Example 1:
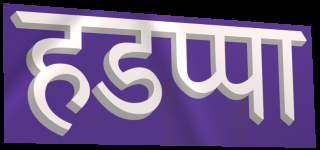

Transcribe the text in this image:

हडप्पा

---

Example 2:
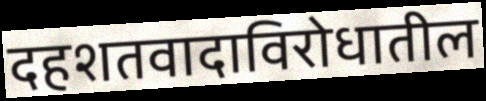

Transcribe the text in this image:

दहशतवादाविरोधातील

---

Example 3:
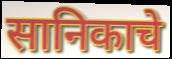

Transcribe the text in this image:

सानिकाचे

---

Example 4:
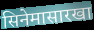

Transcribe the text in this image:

सिनेमासारखा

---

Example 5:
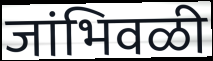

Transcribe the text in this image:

जांभिवळी